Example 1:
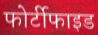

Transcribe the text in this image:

फोर्टीफाइड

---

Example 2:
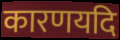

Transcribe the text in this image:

कारणयदि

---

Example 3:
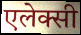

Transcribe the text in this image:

एलेक्सी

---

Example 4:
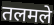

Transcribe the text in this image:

तलमले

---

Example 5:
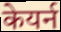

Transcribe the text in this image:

केयर्न